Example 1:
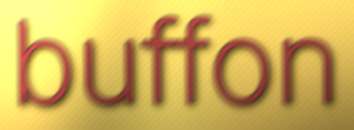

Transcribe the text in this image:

buffon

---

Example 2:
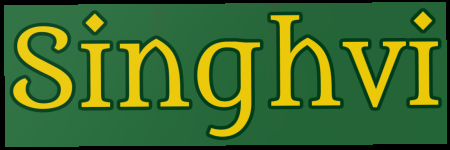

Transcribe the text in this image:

Singhvi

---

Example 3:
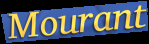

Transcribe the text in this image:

Mourant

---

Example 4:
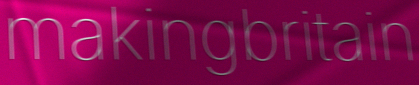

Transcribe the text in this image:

makingbritain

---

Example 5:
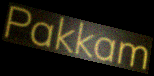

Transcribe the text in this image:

Pakkam